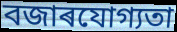
বজাৰযোগ্যতা